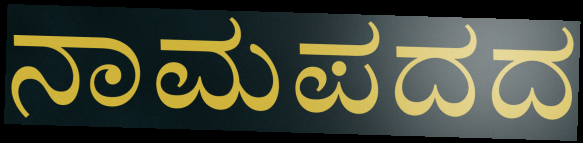
ನಾಮಪದದ